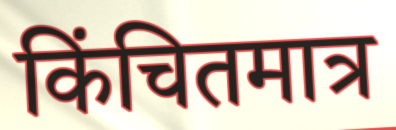
किंचितमात्र